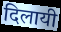
दिलायी